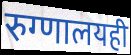
रुग्णालयही